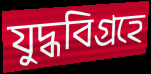
যুদ্ধবিগ্রহে